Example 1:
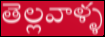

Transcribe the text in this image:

తెల్లవాళ్ళ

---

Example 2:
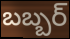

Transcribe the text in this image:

బబ్బర్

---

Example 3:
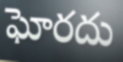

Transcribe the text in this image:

ఘోరదు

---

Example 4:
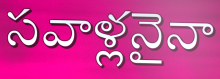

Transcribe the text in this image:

సవాళ్లనైనా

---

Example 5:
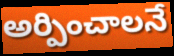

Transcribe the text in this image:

అర్పించాలనే